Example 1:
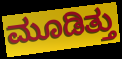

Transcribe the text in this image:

ಮೂಡಿತ್ತು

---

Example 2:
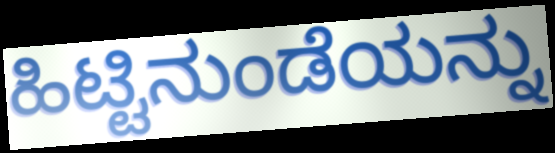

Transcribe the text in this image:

ಹಿಟ್ಟಿನುಂಡೆಯನ್ನು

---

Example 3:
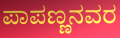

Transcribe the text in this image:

ಪಾಪಣ್ಣನವರ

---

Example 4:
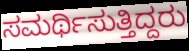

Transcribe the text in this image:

ಸಮರ್ಥಿಸುತ್ತಿದ್ದರು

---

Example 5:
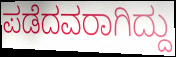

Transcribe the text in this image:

ಪಡೆದವರಾಗಿದ್ದು